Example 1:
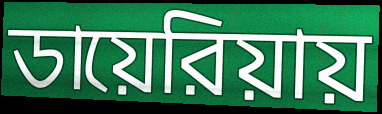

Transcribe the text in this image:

ডায়েরিয়ায়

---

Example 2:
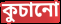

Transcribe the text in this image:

কুচানো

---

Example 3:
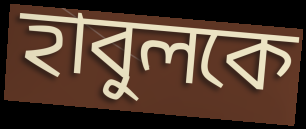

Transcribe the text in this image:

হাবুলকে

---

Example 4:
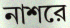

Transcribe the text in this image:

নাশরে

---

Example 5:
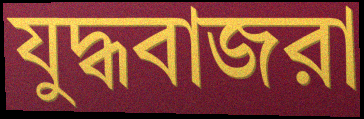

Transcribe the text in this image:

যুদ্ধবাজরা